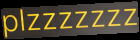
plzzzzzzz